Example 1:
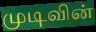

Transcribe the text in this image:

முடிவின்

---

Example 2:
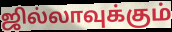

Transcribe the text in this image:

ஜில்லாவுக்கும்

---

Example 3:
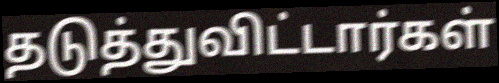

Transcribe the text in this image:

தடுத்துவிட்டார்கள்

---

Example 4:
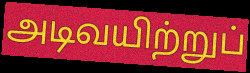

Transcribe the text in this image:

அடிவயிற்றுப்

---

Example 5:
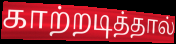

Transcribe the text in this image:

காற்றடித்தால்